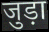
जुड़ा